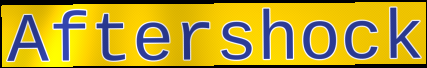
Aftershock